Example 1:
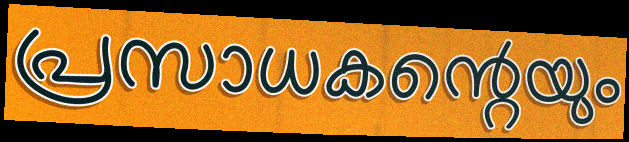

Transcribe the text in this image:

പ്രസാധകന്റെയും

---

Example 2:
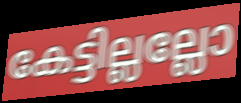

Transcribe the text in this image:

കേട്ടില്ലല്ലോ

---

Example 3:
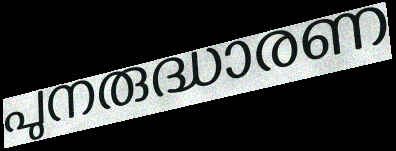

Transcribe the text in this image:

പുനരുദ്ധാരണ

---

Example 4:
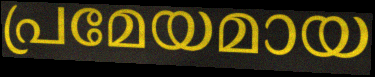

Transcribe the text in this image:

പ്രമേയമായ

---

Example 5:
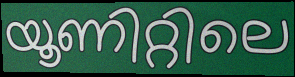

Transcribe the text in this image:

യൂണിറ്റിലെ